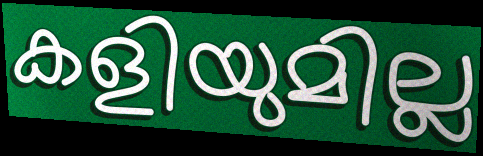
കളിയുമില്ല